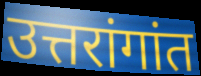
उत्तरांगांत